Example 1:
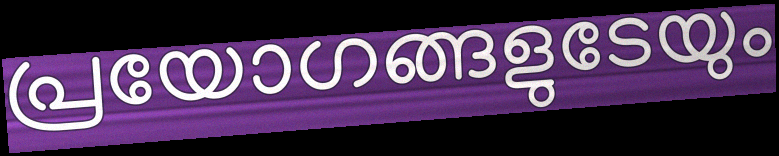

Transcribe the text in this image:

പ്രയോഗങ്ങളുടേയും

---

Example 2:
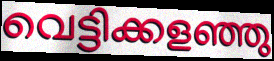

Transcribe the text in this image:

വെട്ടിക്കളഞ്ഞു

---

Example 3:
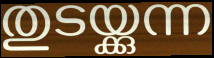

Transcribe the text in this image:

തുടയ്ക്കുന്ന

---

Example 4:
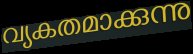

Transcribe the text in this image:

വ്യകതമാക്കുന്നു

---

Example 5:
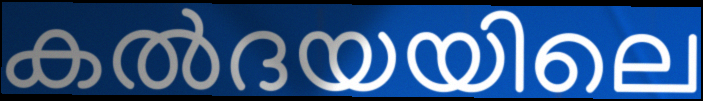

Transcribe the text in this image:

കൽദയയിലെ